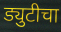
ड्युटीचा